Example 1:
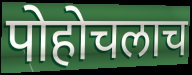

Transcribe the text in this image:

पोहोचलाच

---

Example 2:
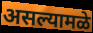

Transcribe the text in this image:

असल्यामळे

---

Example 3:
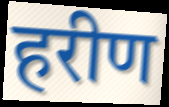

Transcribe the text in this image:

हरीण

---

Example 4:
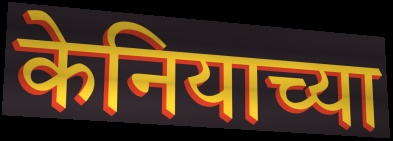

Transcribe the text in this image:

केनियाच्या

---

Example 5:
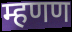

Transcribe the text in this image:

म्हणण